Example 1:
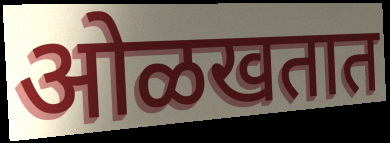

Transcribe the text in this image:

ओळखतात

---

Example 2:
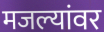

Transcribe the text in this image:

मजल्यांवर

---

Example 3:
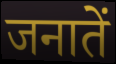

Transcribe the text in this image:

जनातें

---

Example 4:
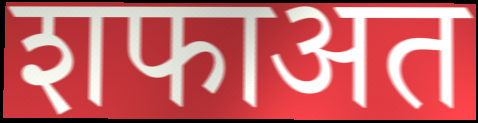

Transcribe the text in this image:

शफाअत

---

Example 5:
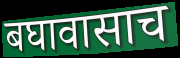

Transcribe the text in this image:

बघावासाच